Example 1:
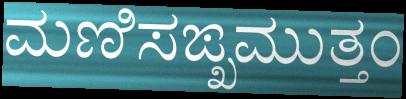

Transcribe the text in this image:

ಮಣಿಸಙ್ಖಮುತ್ತಂ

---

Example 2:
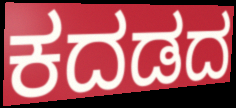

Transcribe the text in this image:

ಕದಡದ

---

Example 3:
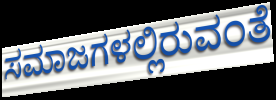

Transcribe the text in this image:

ಸಮಾಜಗಳಲ್ಲಿರುವಂತೆ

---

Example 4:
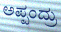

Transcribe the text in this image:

ಅಪ್ಪಂದ್ರು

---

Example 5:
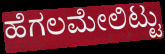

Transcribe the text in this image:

ಹೆಗಲಮೇಲಿಟ್ಟು